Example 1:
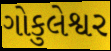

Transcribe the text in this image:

ગોકુલેશ્વર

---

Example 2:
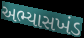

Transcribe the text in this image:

અભ્યાસખંડ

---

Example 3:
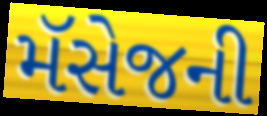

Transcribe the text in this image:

મૅસેજની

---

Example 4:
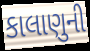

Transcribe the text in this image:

કાલાણુની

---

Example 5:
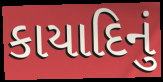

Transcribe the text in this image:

કાયાદિનું